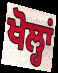
ਖੋਲ੍ਹਾਂ